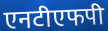
एनटीएफपी